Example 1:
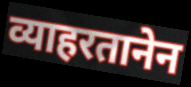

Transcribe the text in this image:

व्याहरतानेन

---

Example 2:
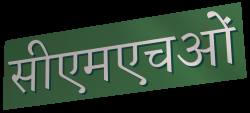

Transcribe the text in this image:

सीएमएचओं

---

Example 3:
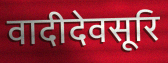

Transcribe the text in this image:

वादीदेवसूरि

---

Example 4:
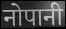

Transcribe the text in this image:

नोपानी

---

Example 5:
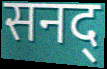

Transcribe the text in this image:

सनद्